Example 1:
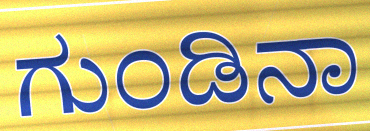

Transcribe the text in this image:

ಗುಂಡಿನಾ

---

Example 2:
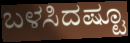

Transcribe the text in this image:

ಬಳಸಿದಷ್ಟೂ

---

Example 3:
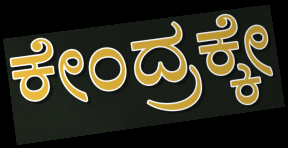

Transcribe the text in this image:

ಕೇಂದ್ರಕ್ಕೇ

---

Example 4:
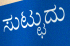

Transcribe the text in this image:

ಸುಟ್ಟುದು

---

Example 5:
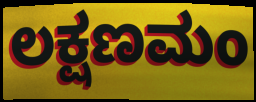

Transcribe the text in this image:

ಲಕ್ಷಣಮಂ